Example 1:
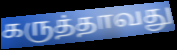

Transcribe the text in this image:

கருத்தாவது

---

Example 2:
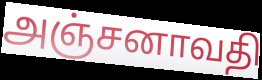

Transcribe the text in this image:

அஞ்சனாவதி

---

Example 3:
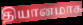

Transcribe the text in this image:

தியானமாக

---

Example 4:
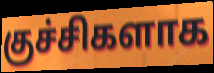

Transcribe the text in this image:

குச்சிகளாக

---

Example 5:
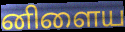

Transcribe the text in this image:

னிளைய